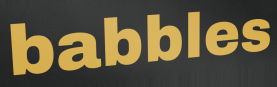
babbles